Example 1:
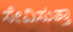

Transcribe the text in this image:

ಸೇವಿಸುತ್ತಾ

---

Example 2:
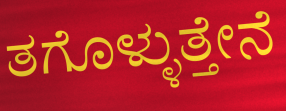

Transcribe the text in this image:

ತಗೊಳ್ಳುತ್ತೇನೆ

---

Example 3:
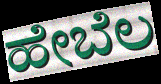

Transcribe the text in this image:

ಹೇಬೆಲ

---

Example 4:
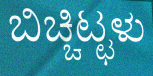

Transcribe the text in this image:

ಬಿಚ್ಚಿಟ್ಟಳು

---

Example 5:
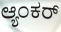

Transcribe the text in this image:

ಆ್ಯಂಕರ್